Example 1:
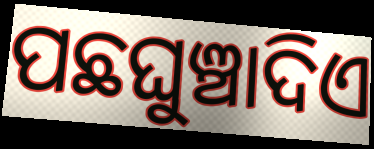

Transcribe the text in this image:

ପଛଘୁଞ୍ଚାଦିଏ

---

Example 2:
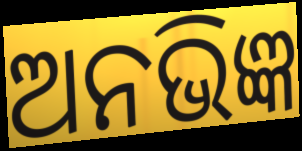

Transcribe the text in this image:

ଅନଭିଜ୍ଞ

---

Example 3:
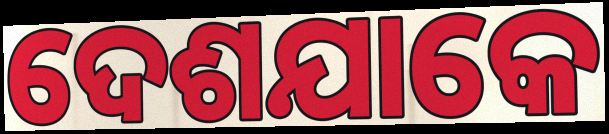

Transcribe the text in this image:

ଦେଶଯାକେ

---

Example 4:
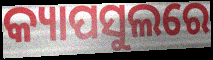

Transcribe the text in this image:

କ୍ୟାପସୁଲରେ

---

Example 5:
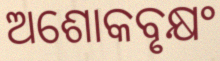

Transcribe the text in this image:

ଅଶୋକବୃକ୍ଷଂ